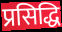
प्रसिद्धि